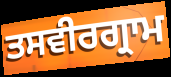
ਤਸਵੀਰਗ੍ਰਾਮ